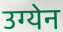
उग्येन